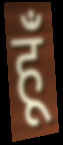
हूंँ